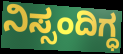
ನಿಸ್ಸಂದಿಗ್ಧ